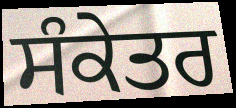
ਸੰਕੇਤਰ